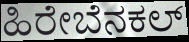
ಹಿರೇಬೆನಕಲ್